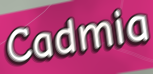
Cadmia